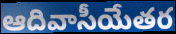
ఆదివాసీయేతర